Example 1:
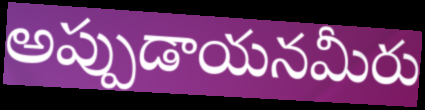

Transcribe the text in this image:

అప్పుడాయనమీరు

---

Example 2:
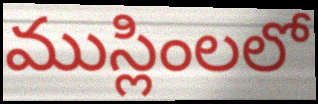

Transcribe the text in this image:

ముస్లింలలో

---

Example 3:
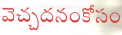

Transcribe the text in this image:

వెచ్చదనంకోసం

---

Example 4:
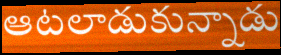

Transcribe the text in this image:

ఆటలాడుకున్నాడు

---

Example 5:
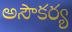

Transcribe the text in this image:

అసౌకర్య